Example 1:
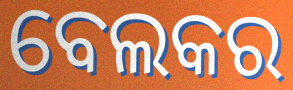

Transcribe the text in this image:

ବେଲକର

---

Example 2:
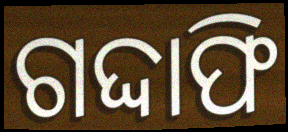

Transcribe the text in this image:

ଗଦ୍ଦାଫି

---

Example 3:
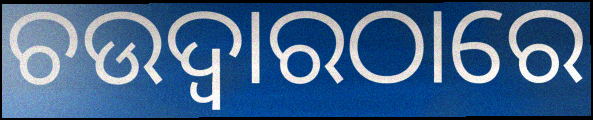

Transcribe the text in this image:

ଚଉଦ୍ଵାରଠାରେ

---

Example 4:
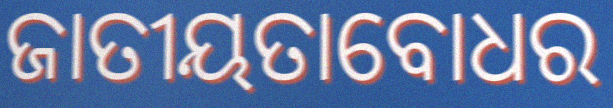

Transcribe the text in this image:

ଜାତୀୟତାବୋଧର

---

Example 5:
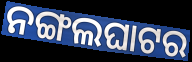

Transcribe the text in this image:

ନଙ୍ଗଲଘାଟର